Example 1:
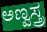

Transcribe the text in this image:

ಅಣ್ವಸ್ತ್ರ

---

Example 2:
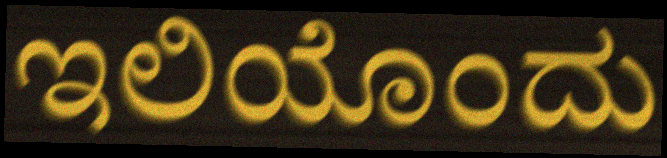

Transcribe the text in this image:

ಇಲಿಯೊಂದು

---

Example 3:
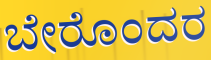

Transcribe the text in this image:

ಬೇರೊಂದರ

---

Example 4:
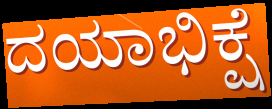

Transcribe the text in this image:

ದಯಾಭಿಕ್ಷೆ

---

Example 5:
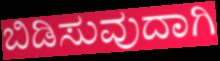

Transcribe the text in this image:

ಬಿಡಿಸುವುದಾಗಿ